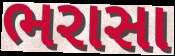
ભરાસા